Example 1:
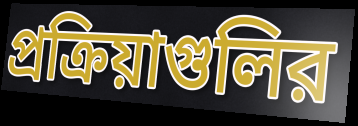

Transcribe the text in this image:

প্রক্রিয়াগুলির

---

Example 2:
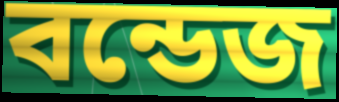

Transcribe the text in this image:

বন্ডেজ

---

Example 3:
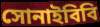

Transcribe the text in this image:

সোনাইবিবি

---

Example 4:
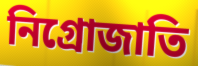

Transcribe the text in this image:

নিগ্রোজাতি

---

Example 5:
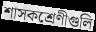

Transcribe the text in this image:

শাসকশ্রেণীগুলি